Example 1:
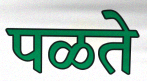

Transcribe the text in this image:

पळते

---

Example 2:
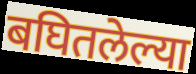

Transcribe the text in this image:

बघितलेल्या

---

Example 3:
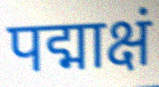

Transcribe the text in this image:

पद्माक्षं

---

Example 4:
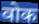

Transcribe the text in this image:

वोक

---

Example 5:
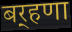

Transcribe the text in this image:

बर्हणा